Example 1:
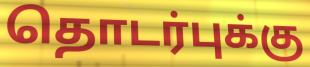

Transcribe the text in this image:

தொடர்புக்கு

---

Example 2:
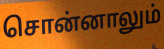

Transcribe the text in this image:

சொன்னாலும்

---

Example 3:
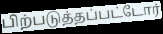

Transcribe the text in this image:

பிற்படுத்தப்பட்டோர்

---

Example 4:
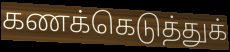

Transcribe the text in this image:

கணக்கெடுத்துக்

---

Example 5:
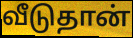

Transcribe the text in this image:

வீடுதான்